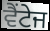
ਵੈਂਟੇਜ